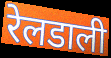
रेलडाली